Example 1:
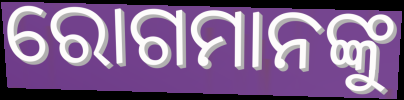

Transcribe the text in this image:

ରୋଗମାନଙ୍କୁ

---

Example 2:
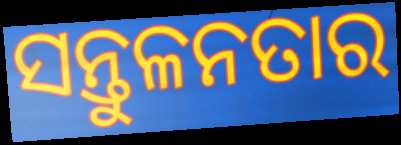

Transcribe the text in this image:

ସନ୍ତୁଳନତାର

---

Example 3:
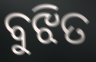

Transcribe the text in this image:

ବୁଝିତ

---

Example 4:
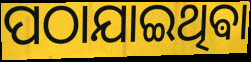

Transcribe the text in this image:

ପଠାଯାଇଥିଵା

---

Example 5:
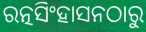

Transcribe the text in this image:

ରତ୍ନସିଂହାସନଠାରୁ